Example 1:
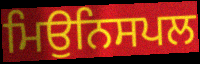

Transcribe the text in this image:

ਮਿਉਨਿਸਪਲ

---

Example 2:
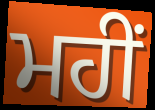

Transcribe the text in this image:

ਮਹੀਂ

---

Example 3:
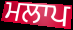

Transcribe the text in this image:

ਮਲਾਪ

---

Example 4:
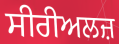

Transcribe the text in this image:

ਸੀਰੀਅਲਜ਼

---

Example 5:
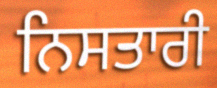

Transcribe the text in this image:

ਨਿਸਤਾਰੀ